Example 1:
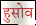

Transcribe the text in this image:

हुसोव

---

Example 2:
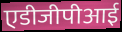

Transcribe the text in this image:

एडीजीपीआई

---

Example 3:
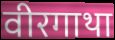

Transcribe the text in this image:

वीरगाथा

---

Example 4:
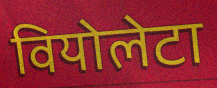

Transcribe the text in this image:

वियोलेटा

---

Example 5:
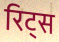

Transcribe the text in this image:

रिट्स